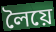
লৈয়ে